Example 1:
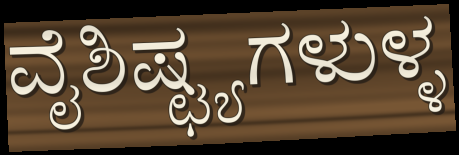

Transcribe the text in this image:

ವೈಶಿಷ್ಟ್ಯಗಳುಳ್ಳ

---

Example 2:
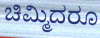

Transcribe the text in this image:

ಚಿಮ್ಮಿದರೂ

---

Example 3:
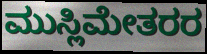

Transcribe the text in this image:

ಮುಸ್ಲಿಮೇತರರ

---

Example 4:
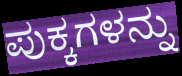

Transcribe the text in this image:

ಪುಕ್ಕಗಳನ್ನು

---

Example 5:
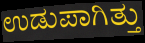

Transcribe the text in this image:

ಉಡುಪಾಗಿತ್ತು